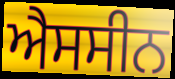
ਐਸਸੀਨ